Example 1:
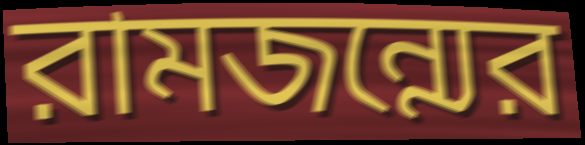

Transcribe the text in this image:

রামজন্মের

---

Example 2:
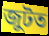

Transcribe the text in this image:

জুটত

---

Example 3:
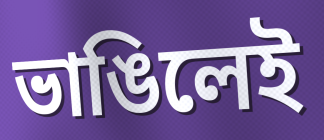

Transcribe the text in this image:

ভাঙিলেই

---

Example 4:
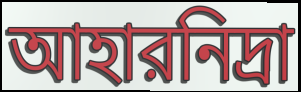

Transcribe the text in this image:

আহারনিদ্রা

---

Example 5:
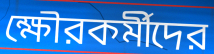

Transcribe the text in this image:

ক্ষৌরকর্মীদের